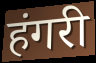
हंगरी